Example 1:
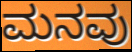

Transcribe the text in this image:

ಮನವು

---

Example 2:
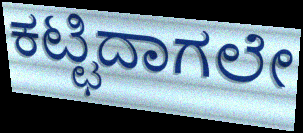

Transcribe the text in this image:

ಕಟ್ಟಿದಾಗಲೇ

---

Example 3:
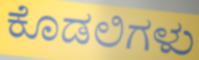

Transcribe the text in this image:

ಕೊಡಲಿಗಳು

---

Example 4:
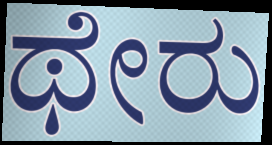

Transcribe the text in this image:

ಥೇರು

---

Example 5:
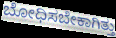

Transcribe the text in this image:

ಬೋಧಿಸಬೇಕಾಗಿತ್ತು